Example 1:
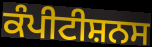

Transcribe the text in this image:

ਕੰਪੀਟੀਸ਼ਨਸ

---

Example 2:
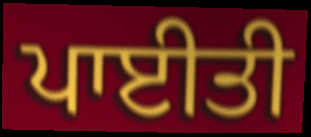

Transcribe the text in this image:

ਪਾਈਤੀ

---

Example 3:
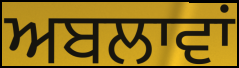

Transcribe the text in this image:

ਅਬਲਾਵਾਂ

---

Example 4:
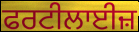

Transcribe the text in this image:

ਫਰਟੀਲਾਈਜ਼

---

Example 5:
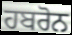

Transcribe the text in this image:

ਹਬਰੋਨ